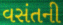
વસંતની